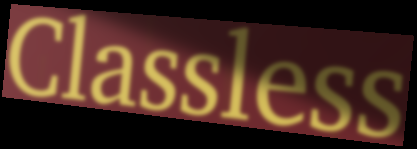
Classless